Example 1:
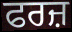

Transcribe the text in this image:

ਫਰਜ਼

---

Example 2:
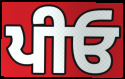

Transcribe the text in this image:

ਪੀਓ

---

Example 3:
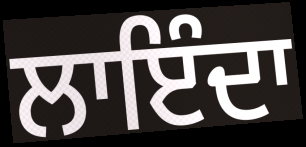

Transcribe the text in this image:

ਲਾਇੰਦਾ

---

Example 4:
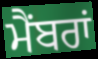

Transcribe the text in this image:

ਮੈਂਬਰਾਂ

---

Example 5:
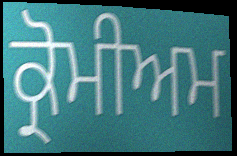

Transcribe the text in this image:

ਕ੍ਰੋਮੀਅਮ